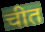
चीत